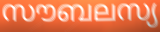
സൗബലസ്യ